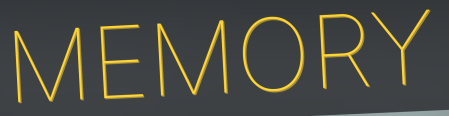
MEMORY